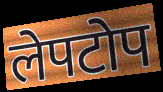
लेपटोप